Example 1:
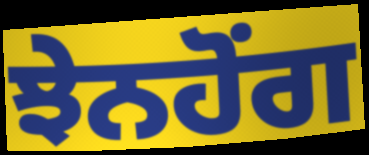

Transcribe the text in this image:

ਝੇਨਹੋਂਗ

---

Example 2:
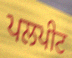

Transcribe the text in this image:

ਪਲਪੀਟ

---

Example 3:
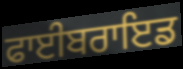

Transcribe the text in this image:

ਫਾਈਬਰਾਇਡ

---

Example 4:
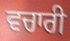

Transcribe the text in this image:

ਵਚਾਰੀ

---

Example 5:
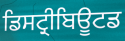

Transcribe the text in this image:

ਡਿਸਟ੍ਰੀਬਿਊਟਡ